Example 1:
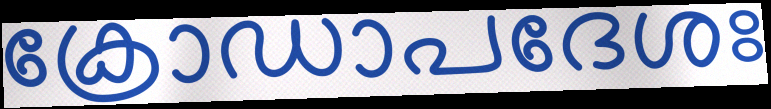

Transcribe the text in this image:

ക്രോഡാപദേശഃ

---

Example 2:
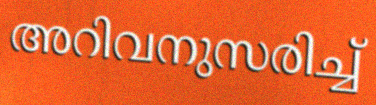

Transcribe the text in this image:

അറിവനുസരിച്ച്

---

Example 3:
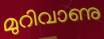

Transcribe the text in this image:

മുറിവാണു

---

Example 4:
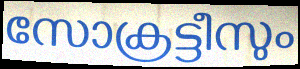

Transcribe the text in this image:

സോക്രട്ടീസും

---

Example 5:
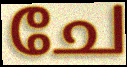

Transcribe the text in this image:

ചേ